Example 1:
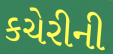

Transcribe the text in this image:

કચેરીની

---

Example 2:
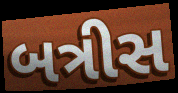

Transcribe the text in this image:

બત્રીસ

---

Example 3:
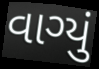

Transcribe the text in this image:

વાગ્યું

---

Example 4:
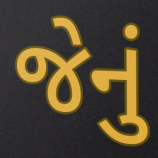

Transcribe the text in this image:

જેનું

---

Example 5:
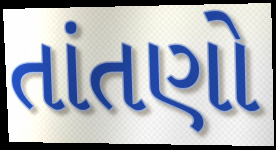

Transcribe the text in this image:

તાંતણો